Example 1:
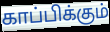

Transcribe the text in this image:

காப்பிக்கும்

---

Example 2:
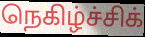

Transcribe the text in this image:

நெகிழ்ச்சிக்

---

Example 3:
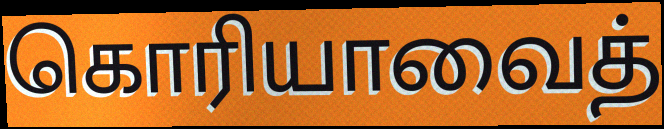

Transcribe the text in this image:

கொரியாவைத்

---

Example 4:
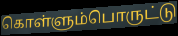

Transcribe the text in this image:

கொள்ளும்பொருட்டு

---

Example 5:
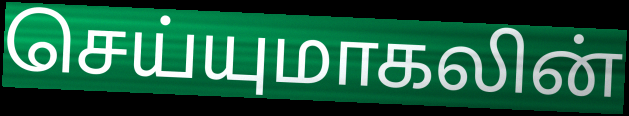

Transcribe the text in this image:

செய்யுமாகலின்